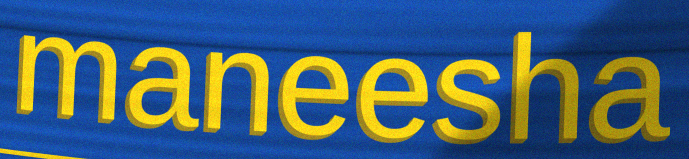
maneesha